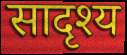
सादृश्य